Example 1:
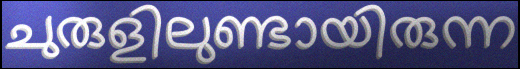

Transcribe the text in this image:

ചുരുളിലുണ്ടായിരുന്ന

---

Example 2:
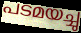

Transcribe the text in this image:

പടമയച്ചു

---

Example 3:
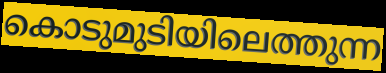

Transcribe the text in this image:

കൊടുമുടിയിലെത്തുന്ന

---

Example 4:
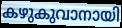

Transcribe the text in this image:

കഴുകുവാനായി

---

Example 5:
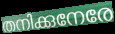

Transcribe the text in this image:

തനിക്കുനേരേ